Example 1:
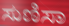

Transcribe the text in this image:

ಸುಣಿಸಾ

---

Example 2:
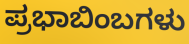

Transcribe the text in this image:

ಪ್ರಭಾಬಿಂಬಗಳು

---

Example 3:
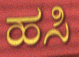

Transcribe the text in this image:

ಹಸಿ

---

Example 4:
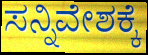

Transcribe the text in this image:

ಸನ್ನಿವೇಶಕ್ಕೆ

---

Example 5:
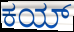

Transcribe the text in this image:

ಕಯ್